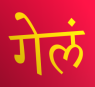
गेलं